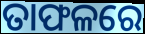
ତାଫଳରେ